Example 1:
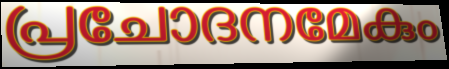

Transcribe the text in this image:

പ്രചോദനമേകും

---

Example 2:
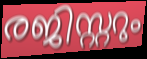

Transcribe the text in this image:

രജിസ്റ്ററും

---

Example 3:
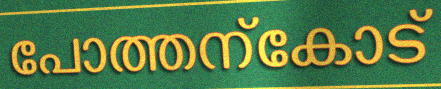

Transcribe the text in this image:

പോത്തന്കോട്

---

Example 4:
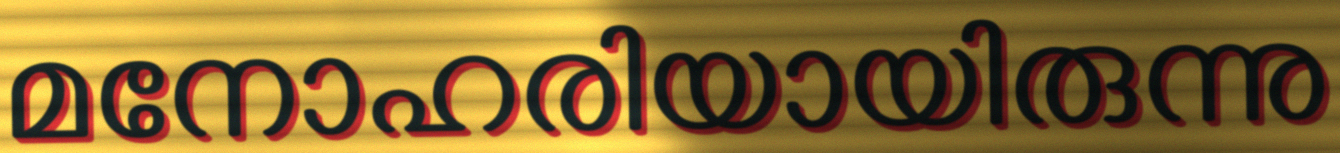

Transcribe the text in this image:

മനോഹരിയായിരുന്നു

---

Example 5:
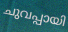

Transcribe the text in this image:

ചുവപ്പായി